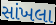
સાંખલા